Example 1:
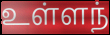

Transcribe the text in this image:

உள்ளந்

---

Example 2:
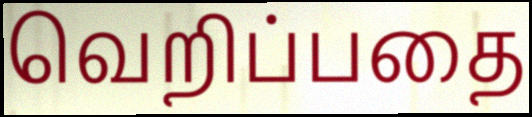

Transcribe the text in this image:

வெறிப்பதை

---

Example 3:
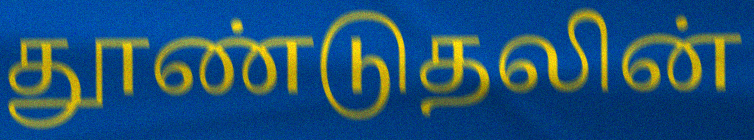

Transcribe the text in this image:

தூண்டுதலின்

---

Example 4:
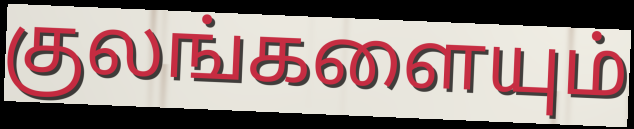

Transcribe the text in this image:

குலங்களையும்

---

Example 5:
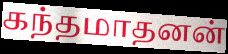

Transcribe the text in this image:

கந்தமாதனன்